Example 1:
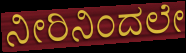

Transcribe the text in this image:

ನೀರಿನಿಂದಲೇ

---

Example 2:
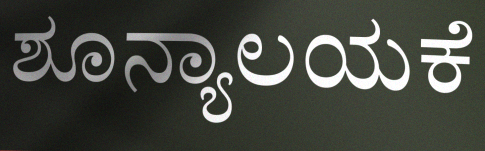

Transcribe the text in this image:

ಶೂನ್ಯಾಲಯಕೆ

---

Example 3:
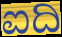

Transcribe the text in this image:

ಐದಿ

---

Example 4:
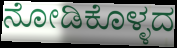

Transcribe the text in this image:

ನೋಡಿಕೊಳ್ಳದ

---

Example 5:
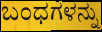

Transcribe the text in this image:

ಬಂಧಗಳನ್ನು